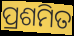
ପ୍ରଶମିତ